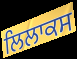
ਲਿਲਾਕਸ